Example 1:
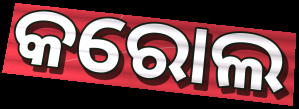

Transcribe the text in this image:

କରୋଲ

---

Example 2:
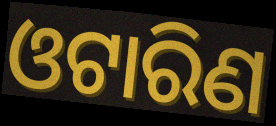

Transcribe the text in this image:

ଓଟାରିଣ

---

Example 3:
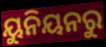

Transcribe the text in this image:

ୟୁନିୟନରୁ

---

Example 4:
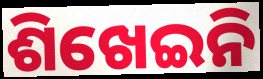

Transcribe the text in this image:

ଶିଖେଇନି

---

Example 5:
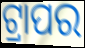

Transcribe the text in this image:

ଟ୍ରାପର